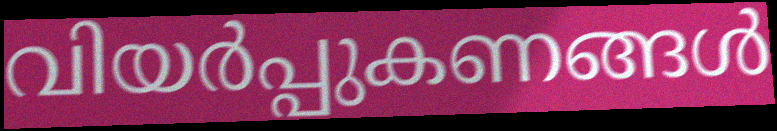
വിയർപ്പുകണങ്ങൾ